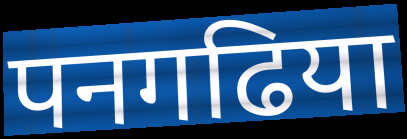
पनगढिया